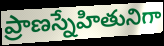
ప్రాణస్నేహితునిగా